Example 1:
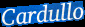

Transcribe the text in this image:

Cardullo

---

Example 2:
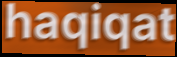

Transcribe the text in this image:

haqiqat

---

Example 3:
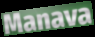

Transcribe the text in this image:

Manava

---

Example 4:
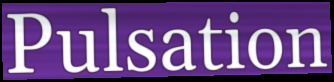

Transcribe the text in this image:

Pulsation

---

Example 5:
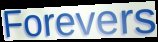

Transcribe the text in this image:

Forevers